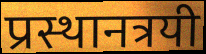
प्रस्थानत्रयी